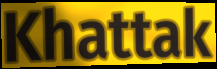
Khattak